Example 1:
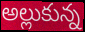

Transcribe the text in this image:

అల్లుకున్న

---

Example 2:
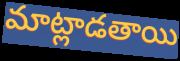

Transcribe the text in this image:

మాట్లాడతాయి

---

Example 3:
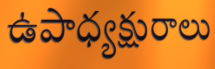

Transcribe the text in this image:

ఉపాధ్యక్షురాలు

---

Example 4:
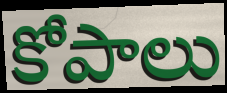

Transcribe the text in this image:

కోపాలు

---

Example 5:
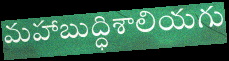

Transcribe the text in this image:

మహాబుద్ధిశాలియగు